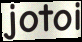
jotoi